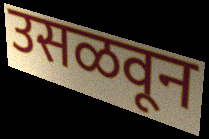
उसळवून